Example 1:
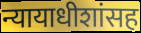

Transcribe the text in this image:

न्यायाधीशांसह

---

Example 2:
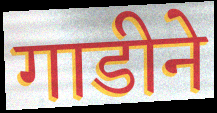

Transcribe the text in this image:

गाडीने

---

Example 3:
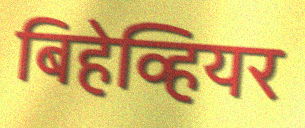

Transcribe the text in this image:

बिहेव्हियर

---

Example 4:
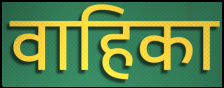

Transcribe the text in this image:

वाहिका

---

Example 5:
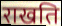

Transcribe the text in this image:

राखति